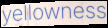
yellowness